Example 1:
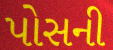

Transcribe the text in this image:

પોસની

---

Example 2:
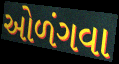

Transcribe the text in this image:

ઓળંગવા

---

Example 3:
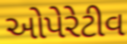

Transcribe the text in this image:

ઓપેરેટીવ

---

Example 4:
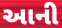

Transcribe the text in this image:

આની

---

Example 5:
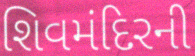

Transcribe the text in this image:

શિવમંદિરની